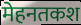
मेहनतकश